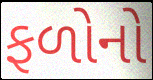
ફળોનો